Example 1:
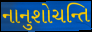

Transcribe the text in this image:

નાનુશોચન્તિ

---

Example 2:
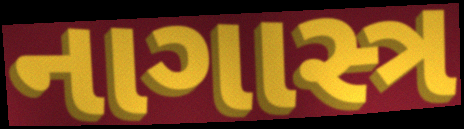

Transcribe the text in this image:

નાગાસ્ત્ર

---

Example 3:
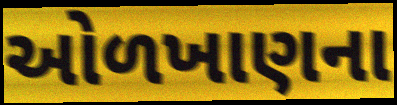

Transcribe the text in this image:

ઓળખાણના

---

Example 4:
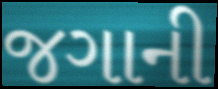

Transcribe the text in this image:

જગાની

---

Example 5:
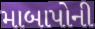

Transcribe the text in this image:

માબાપોની